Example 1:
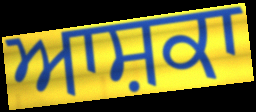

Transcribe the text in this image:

ਆਸ਼ਕਾ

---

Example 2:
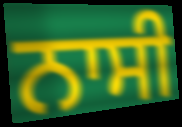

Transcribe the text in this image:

ਨਾਸੀ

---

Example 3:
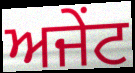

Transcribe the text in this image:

ਅਜੇਂਟ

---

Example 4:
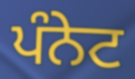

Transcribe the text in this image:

ਪੰਨੇਟ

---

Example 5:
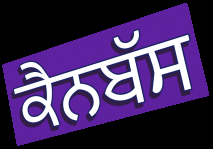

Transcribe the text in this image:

ਕੈਨਬੱਸ